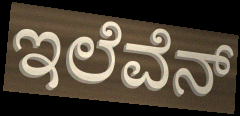
ಇಲೆವೆನ್